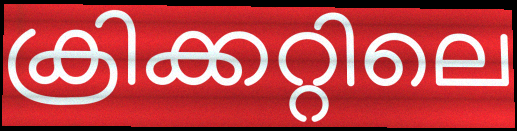
ക്രിക്കറ്റിലെ